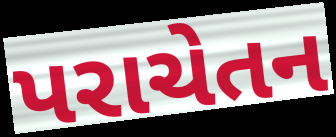
પરાચેતન